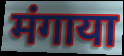
मंगाया